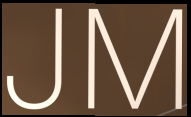
JM